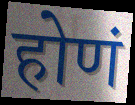
होणं